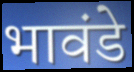
भावंडे